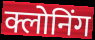
क्लोनिंग